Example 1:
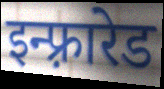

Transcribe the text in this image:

इन्फ़्रारेड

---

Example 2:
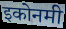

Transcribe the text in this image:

इकोनमी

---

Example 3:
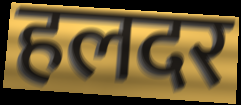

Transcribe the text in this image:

हलदर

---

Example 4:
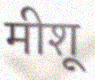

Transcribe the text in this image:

मीशू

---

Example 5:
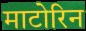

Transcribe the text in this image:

माटोरिन